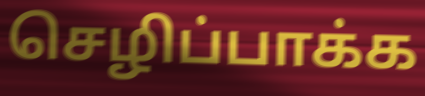
செழிப்பாக்க